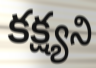
కక్ష్యని